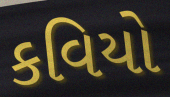
કવિયો